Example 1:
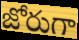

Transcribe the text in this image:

జోరుగా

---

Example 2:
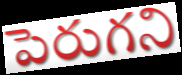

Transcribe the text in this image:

పెరుగని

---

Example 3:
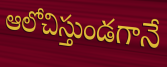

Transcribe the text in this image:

ఆలోచిస్తుండగానే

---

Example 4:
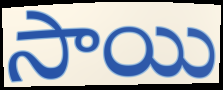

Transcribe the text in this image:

సాయి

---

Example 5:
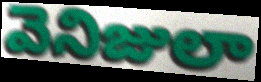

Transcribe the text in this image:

వెనిజులా